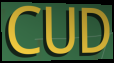
CUD